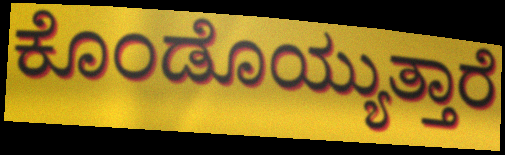
ಕೊಂಡೊಯ್ಯುತ್ತಾರೆ